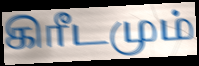
கிரீடமும்